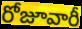
రోజూవారీ